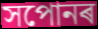
সপোনৰ